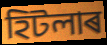
হিটলাৰ